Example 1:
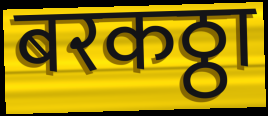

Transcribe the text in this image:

बरकठ्ठा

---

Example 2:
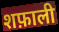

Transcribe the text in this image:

शफ़ाली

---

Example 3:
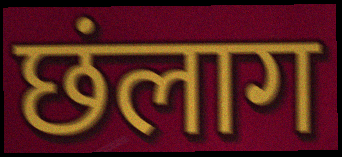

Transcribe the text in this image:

छंलाग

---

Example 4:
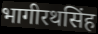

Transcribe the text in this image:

भागीरथसिंह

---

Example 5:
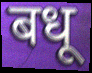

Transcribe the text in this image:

बधू